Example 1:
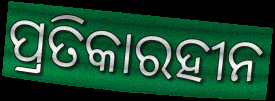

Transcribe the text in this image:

ପ୍ରତିକାରହୀନ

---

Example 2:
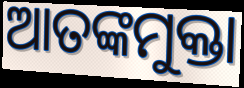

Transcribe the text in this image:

ଆତଙ୍କମୁକ୍ତା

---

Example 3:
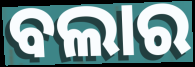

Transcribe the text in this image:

ବଲାର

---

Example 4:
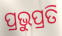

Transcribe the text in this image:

ପ୍ରଭୁପ୍ରତି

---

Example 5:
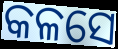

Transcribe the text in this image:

କଳସେ